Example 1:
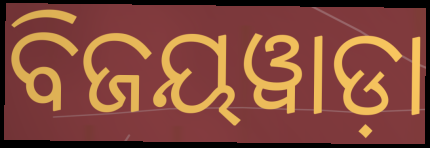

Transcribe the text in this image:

ବିଜୟୱାଡ଼ା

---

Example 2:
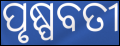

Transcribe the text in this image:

ପୃଷ୍ପବତୀ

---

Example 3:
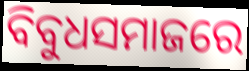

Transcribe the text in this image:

ବିବୁଧସମାଜରେ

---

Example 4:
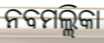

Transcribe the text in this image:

ନବମଲ୍ଲିକା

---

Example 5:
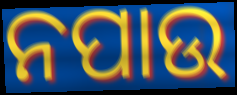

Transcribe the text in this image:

ନପାଉ